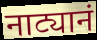
नाट्यानं